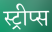
स्ट्रीप्स